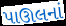
પાઊલનાં